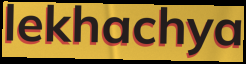
lekhachya